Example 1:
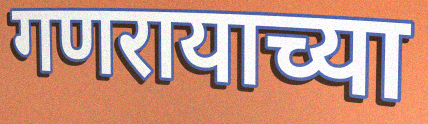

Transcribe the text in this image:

गणरायाच्या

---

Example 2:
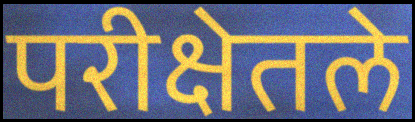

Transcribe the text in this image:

परीक्षेतले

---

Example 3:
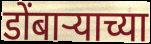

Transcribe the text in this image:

डोंबाऱ्याच्या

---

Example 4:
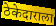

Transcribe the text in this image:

ठेकेदाराला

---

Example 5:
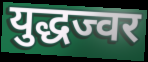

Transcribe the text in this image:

युद्धज्वर